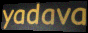
yadava